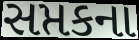
સપ્તકના